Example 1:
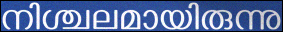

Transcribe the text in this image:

നിശ്ചലമായിരുന്നു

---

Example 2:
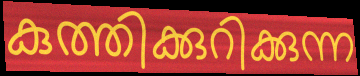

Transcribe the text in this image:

കുത്തിക്കുറിക്കുന്ന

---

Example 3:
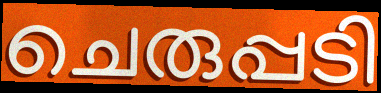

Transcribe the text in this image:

ചെരുപ്പടി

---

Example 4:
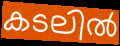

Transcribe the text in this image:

കടലിൽ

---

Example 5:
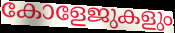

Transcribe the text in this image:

കോളേജുകളും